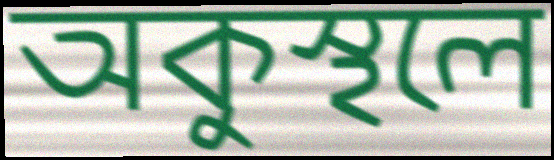
অকুস্থলে